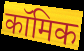
कॉमिक